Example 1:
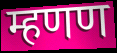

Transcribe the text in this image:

म्हणण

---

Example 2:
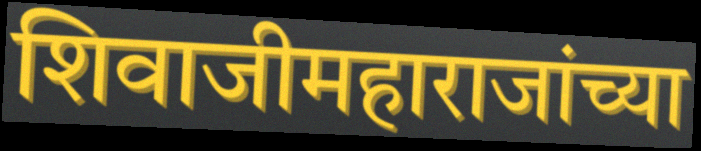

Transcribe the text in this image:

शिवाजीमहाराजांच्या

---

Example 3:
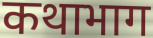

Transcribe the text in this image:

कथाभाग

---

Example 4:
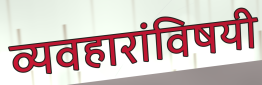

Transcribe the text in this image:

व्यवहारांविषयी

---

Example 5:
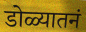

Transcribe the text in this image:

डोळ्यातनं